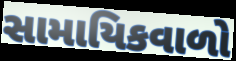
સામાયિકવાળો